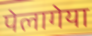
पेलागेया